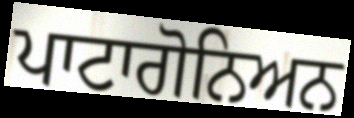
ਪਾਟਾਗੋਨਿਅਨ